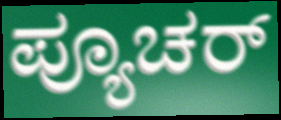
ಪ್ಯೂಚರ್